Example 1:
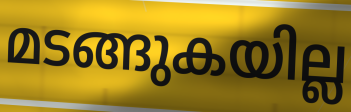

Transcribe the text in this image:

മടങ്ങുകയില്ല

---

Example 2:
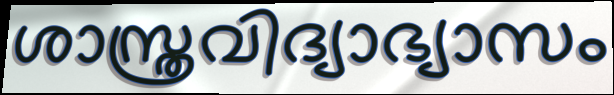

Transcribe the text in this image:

ശാസ്ത്രവിദ്യാഭ്യാസം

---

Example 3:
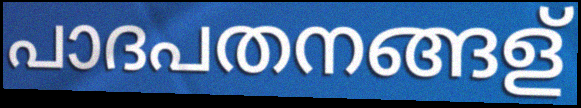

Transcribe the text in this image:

പാദപതനങ്ങള്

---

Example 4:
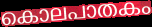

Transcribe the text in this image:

കൊലപാതകം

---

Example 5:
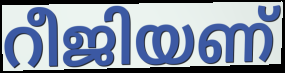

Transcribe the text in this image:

റീജിയണ്